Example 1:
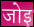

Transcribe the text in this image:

जोइ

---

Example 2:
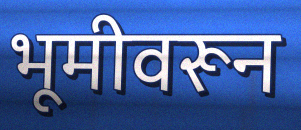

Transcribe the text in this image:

भूमीवरून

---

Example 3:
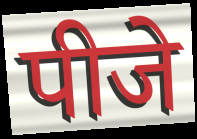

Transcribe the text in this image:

पीजे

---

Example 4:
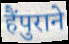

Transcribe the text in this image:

हैंपुराने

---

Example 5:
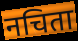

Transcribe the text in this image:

नचिता